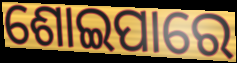
ଶୋଇପାରେ